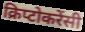
क्रिप्टोकरेंसी